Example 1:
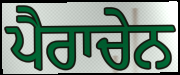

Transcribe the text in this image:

ਪੈਰਾਚੇਨ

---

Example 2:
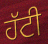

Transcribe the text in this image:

ਹੱਟੀ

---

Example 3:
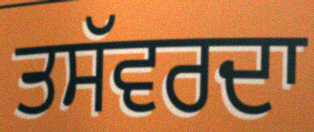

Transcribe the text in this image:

ਤਸੱਵਰਦਾ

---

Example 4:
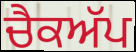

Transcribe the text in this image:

ਚੈਕਅੱਪ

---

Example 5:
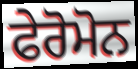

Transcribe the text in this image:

ਫੇਰੋਮੋਨ